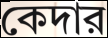
কেদার